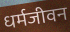
धर्मजीवन